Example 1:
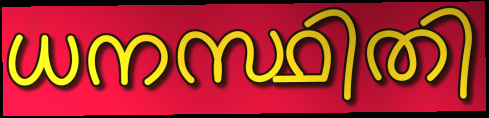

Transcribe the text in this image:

ധനസ്ഥിതി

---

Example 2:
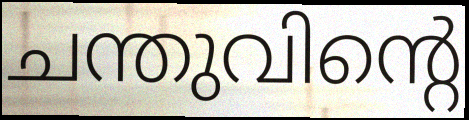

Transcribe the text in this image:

ചന്തുവിന്റെ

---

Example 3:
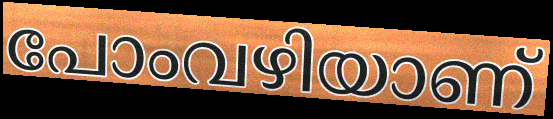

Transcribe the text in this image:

പോംവഴിയാണ്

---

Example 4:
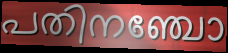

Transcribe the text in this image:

പതിനഞ്ചോ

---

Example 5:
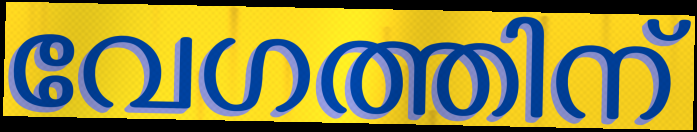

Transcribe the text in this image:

വേഗത്തിന്